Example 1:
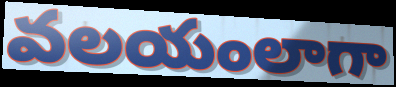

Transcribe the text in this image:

వలయంలాగా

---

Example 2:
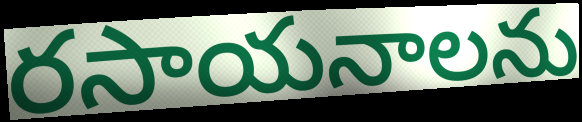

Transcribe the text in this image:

రసాయనాలను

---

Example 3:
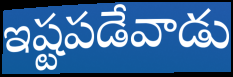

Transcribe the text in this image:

ఇష్టపడేవాడు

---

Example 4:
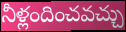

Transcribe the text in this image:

నీళ్లందించవచ్చు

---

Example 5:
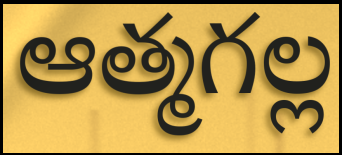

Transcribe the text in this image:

ఆత్మగల్ల